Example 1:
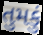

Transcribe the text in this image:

તુમકું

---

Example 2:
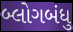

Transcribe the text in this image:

બ્લોગબંધુ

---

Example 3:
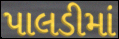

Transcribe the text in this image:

પાલડીમાં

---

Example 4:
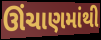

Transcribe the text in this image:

ઊંચાણમાંથી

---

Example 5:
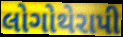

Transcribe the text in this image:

લોગોથેરાપી